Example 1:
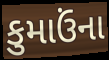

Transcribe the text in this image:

કુમાઉંના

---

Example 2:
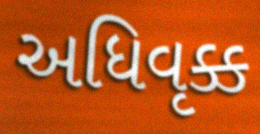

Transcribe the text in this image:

અધિવૃક્ક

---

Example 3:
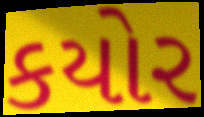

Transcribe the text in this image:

કયોર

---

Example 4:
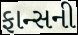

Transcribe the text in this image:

ફાન્સની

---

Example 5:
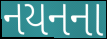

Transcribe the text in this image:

નયનના